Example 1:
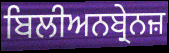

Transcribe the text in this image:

ਬਿਲੀਅਨਬ੍ਰੇਨਜ਼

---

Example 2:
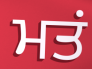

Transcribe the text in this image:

ਮਤਂ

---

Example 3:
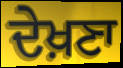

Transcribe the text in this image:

ਦੇਖ਼ਣਾ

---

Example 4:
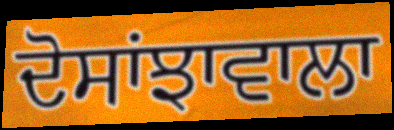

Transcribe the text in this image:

ਦੋਸਾਂਝਾਵਾਲਾ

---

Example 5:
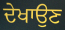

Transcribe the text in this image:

ਦੇਖਾਉਣ